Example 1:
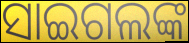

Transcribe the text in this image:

ସାଇଗଲଙ୍କ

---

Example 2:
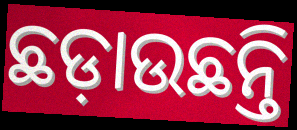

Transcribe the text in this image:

ଛଡ଼ାଉଛନ୍ତି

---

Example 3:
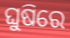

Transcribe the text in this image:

ଘୁଷିରେ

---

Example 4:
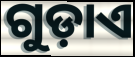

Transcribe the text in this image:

ଗୁଡ଼ାଏ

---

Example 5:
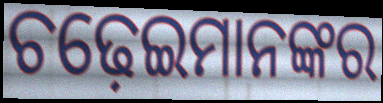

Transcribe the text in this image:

ଚଢ଼େଇମାନଙ୍କର